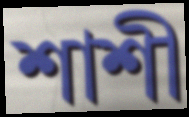
শাশী